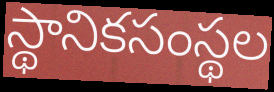
స్థానికసంస్థల